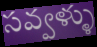
సవ్వళ్ళు